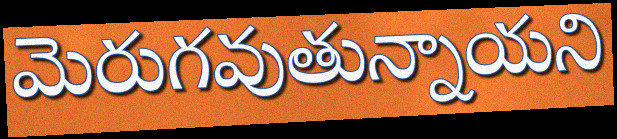
మెరుగవుతున్నాయని